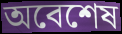
অবেশেষ